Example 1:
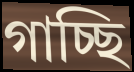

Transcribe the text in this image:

গাচ্ছি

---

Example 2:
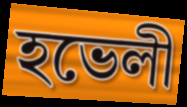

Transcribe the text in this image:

হভেলী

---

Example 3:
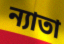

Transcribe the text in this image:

ন্যাতা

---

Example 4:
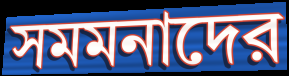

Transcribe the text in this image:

সমমনাদের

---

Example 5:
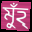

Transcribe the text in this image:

মুঁহ্